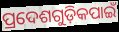
ପ୍ରଦେଶଗୁଡ଼ିକପାଇଁ